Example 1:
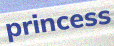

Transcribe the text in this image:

princess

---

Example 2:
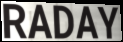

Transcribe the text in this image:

RADAY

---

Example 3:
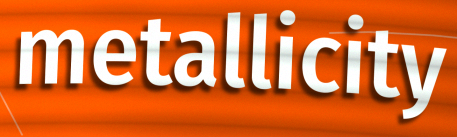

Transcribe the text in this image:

metallicity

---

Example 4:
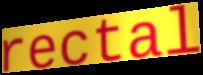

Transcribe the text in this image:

rectal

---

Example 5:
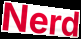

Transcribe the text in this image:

Nerd